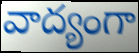
వాద్యంగా